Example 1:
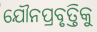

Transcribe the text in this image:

ଯୌନପ୍ରବୃତ୍ତିକୁ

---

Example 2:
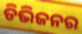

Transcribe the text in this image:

ଡିଭିଜନର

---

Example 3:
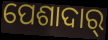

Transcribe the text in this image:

ପେଶାଦାର୍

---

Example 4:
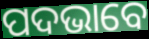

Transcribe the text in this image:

ପଦଭାବେ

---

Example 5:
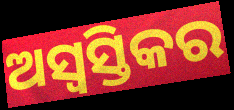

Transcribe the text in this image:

ଅସ୍ୱସ୍ତିକର